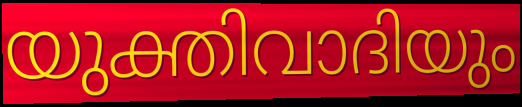
യുക്തിവാദിയും